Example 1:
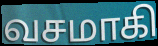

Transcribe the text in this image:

வசமாகி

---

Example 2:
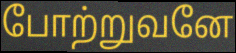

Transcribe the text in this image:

போற்றுவனே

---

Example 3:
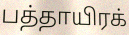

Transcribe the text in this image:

பத்தாயிரக்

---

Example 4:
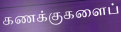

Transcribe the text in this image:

கணக்குகளைப்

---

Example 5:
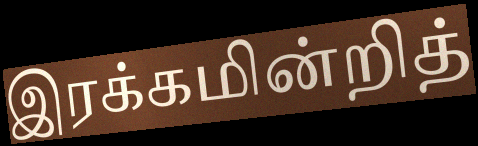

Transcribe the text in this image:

இரக்கமின்றித்